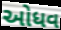
ઓધવ